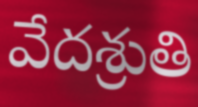
వేదశ్రుతి